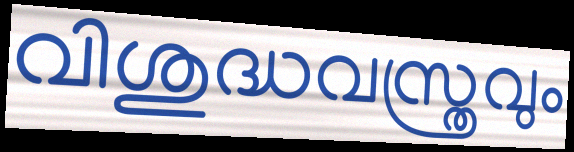
വിശുദ്ധവസ്ത്രവും